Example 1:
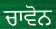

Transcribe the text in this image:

ਚਾਵੋਨ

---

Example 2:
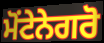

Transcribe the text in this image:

ਮੋਂਟੇਨੇਗਰੋ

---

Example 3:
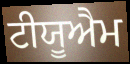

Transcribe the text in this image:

ਟੀਯੂਐਮ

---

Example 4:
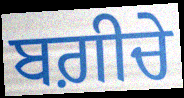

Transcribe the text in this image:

ਬਗ਼ੀਚੇ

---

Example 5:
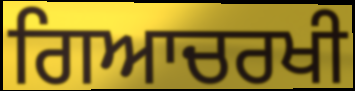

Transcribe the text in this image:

ਗਿਆਚਰਖੀ